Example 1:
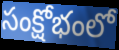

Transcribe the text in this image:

సంక్షోభంలో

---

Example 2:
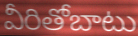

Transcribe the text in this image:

వీరితోబాటు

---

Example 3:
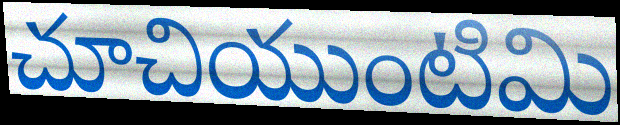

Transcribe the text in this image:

చూచియుంటిమి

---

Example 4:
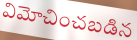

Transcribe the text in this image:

విమోచించబడిన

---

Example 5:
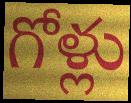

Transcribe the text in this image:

గోళ్లు